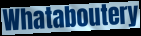
Whataboutery